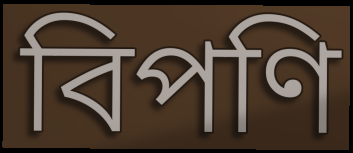
বিপণি